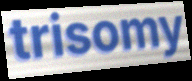
trisomy